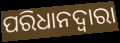
ପରିଧାନଦ୍ୱାରା